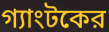
গ্যাংটকের